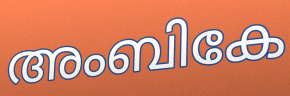
അംബികേ